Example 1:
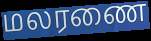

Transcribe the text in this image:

மலரணை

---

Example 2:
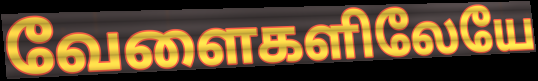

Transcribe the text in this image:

வேளைகளிலேயே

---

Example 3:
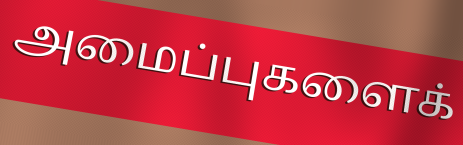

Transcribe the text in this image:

அமைப்புகளைக்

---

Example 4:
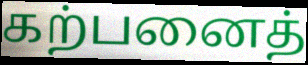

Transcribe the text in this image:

கற்பனைத்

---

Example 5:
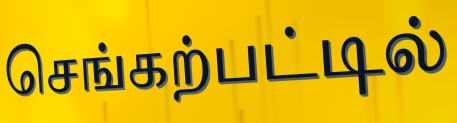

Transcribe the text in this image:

செங்கற்பட்டில்